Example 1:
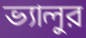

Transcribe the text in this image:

ভ্যালুর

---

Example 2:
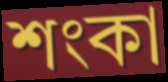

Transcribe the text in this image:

শংকা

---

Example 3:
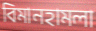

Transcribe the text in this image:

বিমানহামলা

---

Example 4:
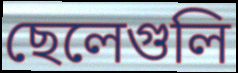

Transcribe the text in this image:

ছেলেগুলি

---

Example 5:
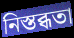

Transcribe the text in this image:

নিস্তব্ধতা